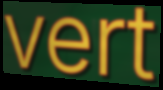
vert